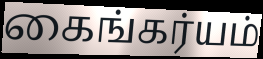
கைங்கர்யம்